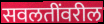
सवलतींवरील